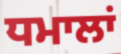
ਧਮਾਲਾਂ